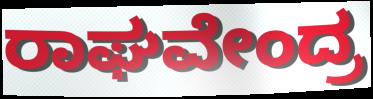
ರಾಘವೇಂದ್ರ